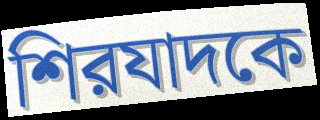
শিরযাদকে